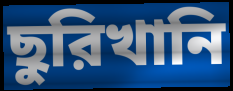
ছুরিখানি